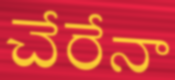
చేరేనా